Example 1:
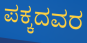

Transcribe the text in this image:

ಪಕ್ಕದವರ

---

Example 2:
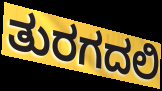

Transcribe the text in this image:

ತುರಗದಲಿ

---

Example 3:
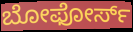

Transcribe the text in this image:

ಬೋಫೋರ್ಸ್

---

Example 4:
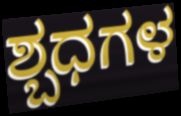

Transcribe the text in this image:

ಶ್ಬಧಗಳ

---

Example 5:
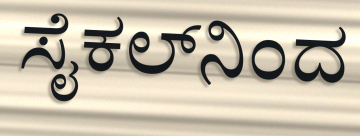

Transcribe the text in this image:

ಸೈಕಲ್‌ನಿಂದ